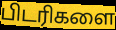
பிடரிகளை